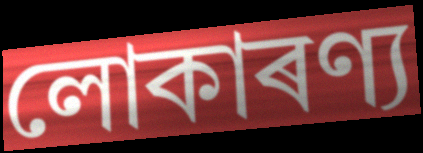
লোকাৰণ্য